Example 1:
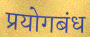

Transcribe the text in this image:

प्रयोगबंध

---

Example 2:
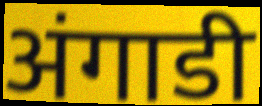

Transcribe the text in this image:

अंगाडी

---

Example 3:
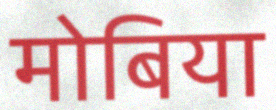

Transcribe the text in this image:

मोबिया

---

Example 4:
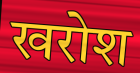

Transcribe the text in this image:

खरोश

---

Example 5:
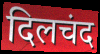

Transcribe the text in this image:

दिलचंद